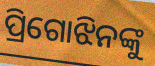
ପ୍ରିଗୋଝିନଙ୍କୁ